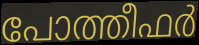
പോത്തീഫർ